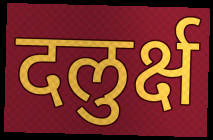
दलुर्क्ष